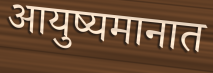
आयुष्यमानात